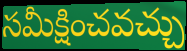
సమీక్షించవచ్చు